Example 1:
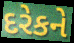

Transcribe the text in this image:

દરેકને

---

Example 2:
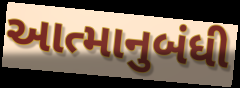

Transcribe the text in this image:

આત્માનુબંધી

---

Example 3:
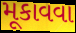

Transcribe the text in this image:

મૂકાવવા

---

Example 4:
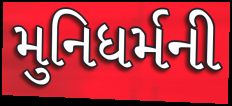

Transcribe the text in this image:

મુનિધર્મની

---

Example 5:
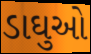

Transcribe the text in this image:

ડાઘુઓ